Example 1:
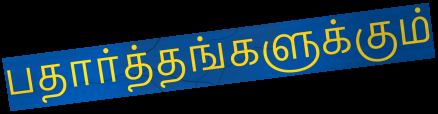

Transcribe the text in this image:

பதார்த்தங்களுக்கும்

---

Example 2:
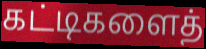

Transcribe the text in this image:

கட்டிகளைத்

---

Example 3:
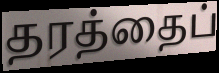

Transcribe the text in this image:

தரத்தைப்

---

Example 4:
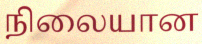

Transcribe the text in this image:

நிலையான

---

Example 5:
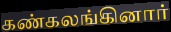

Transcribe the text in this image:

கண்கலங்கினார்